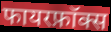
फायरफ़ॉक्स